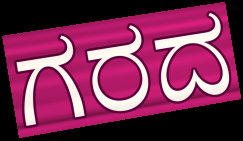
ಗರದ